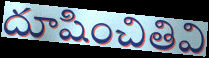
దూషించితివి